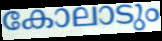
കോലാടും